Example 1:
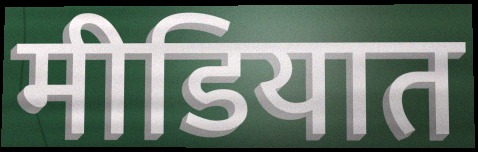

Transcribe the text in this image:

मीडियात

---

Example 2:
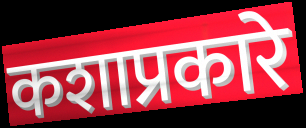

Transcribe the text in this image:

कशाप्रकारे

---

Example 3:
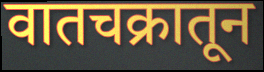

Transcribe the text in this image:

वातचक्रातून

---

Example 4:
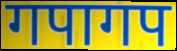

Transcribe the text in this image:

गपागप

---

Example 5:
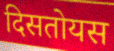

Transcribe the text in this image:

दिसतोयस